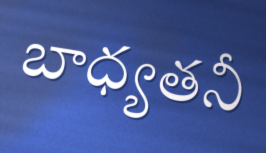
బాధ్యతనీ